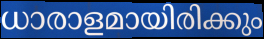
ധാരാളമായിരിക്കും